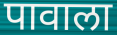
पावाला